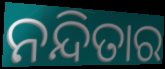
ନନ୍ଦିତାର